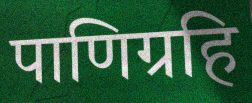
पाणिग्रहि